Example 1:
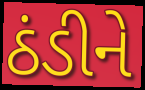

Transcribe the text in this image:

ઠંડીને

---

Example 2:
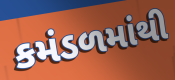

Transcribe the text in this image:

કમંડળમાંથી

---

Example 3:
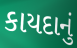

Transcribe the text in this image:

કાયદાનું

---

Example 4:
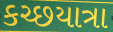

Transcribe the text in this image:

કચ્છયાત્રા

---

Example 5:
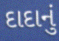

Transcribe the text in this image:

દાદાનું